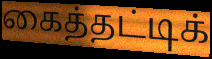
கைத்தட்டிக்